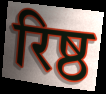
रिष्ठ